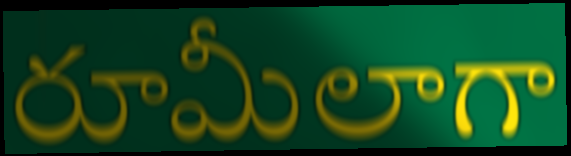
రూమీలాగా